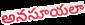
అనసూయలా